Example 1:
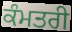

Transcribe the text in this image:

ਕੰਮਤਰੀ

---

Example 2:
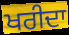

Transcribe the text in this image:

ਖਰੀਦਾ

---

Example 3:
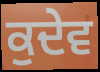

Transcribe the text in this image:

ਕੁਦੇਵ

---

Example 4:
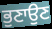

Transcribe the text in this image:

ਭੁਣਾਉਣ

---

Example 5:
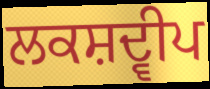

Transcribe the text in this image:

ਲਕਸ਼ਦ੍ਵੀਪ